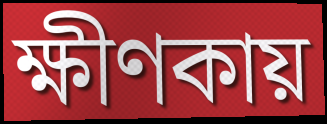
ক্ষীণকায়